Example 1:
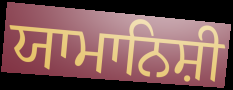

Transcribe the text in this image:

ਯਾਮਾਨਿਸ਼ੀ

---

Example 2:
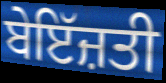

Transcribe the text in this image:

ਬੇਇੱਜ਼ਤੀ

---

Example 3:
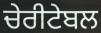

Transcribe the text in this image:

ਚੇਰੀਟੇਬਲ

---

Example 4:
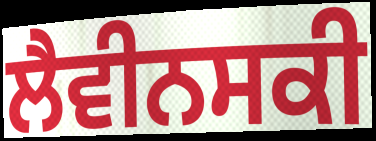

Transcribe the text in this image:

ਲੈਵੀਨਸਕੀ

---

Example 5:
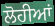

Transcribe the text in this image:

ਲੋਹੀਆਂ